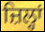
ਜ਼ਿਲ੍ਹਾਂ